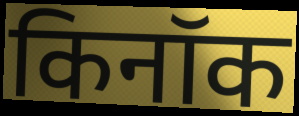
किनॉक